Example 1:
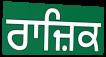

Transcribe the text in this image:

ਰਾਜ਼ਿਕ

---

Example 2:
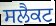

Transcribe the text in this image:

ਸਲੈਕਟ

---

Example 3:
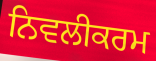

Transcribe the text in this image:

ਨਿਵਲੀਕਰਮ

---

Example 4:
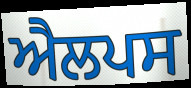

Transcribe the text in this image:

ਐਲਪਸ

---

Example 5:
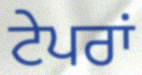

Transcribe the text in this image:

ਟੇਪਰਾਂ